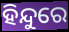
ହିନ୍ଦୁରେ